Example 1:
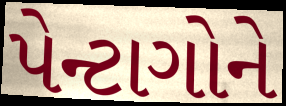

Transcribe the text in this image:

પેન્ટાગોને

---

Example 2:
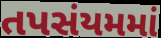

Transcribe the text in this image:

તપસંયમમાં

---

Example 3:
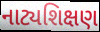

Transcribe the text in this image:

નાટ્યશિક્ષણ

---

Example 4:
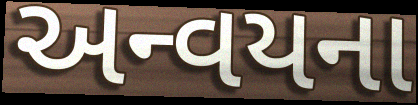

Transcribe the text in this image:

અન્વયના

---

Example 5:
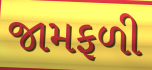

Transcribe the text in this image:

જામફળી